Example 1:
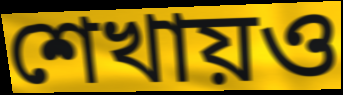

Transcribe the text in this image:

শেখায়ও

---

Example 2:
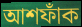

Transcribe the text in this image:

আশফাঁক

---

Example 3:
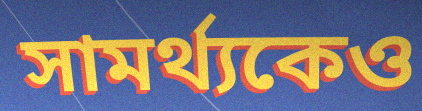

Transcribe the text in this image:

সামর্থ্যকেও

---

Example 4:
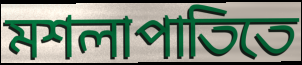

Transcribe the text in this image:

মশলাপাতিতে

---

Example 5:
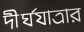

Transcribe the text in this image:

দীর্ঘযাত্রার